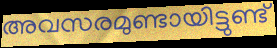
അവസരമുണ്ടായിട്ടുണ്ട്